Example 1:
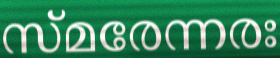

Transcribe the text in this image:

സ്മരേന്നരഃ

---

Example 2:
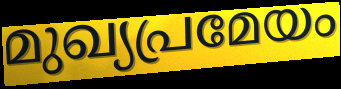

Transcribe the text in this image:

മുഖ്യപ്രമേയം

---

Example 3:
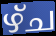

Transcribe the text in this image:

ഴ്ച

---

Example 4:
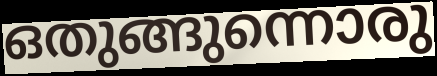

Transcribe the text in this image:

ഒതുങ്ങുന്നൊരു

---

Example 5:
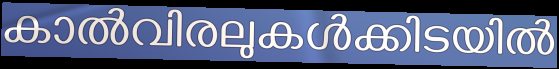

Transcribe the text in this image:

കാൽവിരലുകൾക്കിടയിൽ